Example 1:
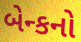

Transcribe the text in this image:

બેન્કનો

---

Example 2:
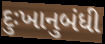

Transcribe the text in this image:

દુઃખાનુબંધી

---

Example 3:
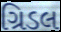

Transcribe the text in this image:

ગ્રિડલ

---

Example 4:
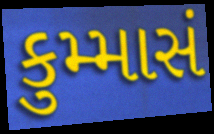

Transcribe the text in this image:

કુમ્માસં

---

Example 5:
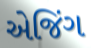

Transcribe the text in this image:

એજિંગ